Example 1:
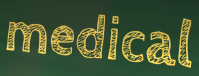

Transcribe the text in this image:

medical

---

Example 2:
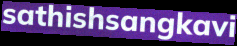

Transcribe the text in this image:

sathishsangkavi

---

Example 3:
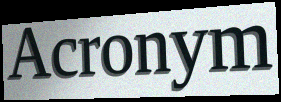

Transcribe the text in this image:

Acronym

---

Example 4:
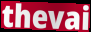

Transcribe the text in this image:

thevai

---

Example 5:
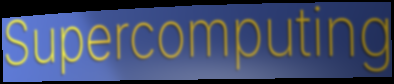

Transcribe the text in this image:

Supercomputing